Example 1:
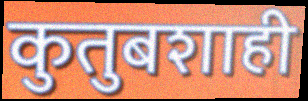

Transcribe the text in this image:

कुतुबशाही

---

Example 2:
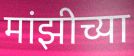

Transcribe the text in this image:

मांझीच्या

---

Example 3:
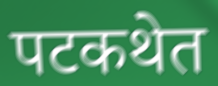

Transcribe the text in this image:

पटकथेत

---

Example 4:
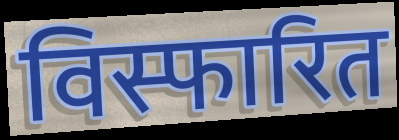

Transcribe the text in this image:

विस्फारित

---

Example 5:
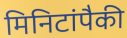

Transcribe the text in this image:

मिनिटांपैकी